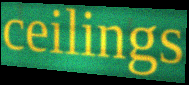
ceilings